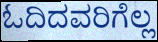
ಓದಿದವರಿಗೆಲ್ಲ